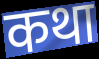
कथा